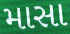
માસા